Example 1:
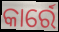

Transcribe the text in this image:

କାର୍ରେ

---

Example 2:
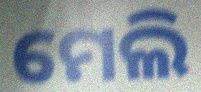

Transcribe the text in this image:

ମେଲି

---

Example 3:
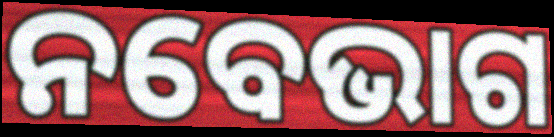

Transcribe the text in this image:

ନବେଭାଗ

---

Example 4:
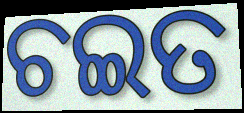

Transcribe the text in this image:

ଚଇତ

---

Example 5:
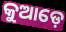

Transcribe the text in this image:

କୁଆଡ଼େ